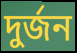
দুর্জন